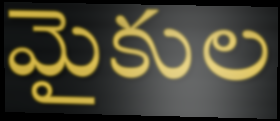
మైకుల